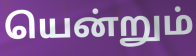
யென்றும்